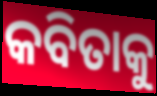
କବିତାକୁ